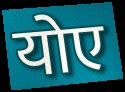
योए